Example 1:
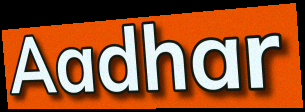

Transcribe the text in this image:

Aadhar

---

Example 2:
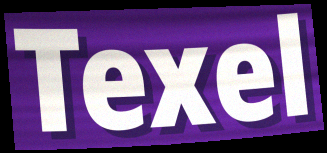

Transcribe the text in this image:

Texel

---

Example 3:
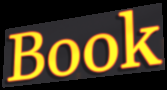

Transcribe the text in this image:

Book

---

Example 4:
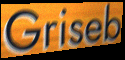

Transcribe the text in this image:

Griseb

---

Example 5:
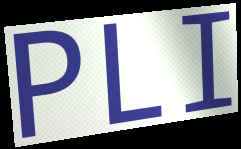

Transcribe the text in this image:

PLI